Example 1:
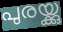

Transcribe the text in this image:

പുരയ്ക്കു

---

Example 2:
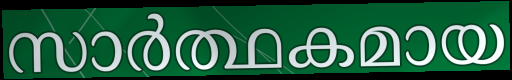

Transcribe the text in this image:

സാർത്ഥകമായ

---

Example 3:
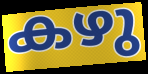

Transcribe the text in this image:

കഴു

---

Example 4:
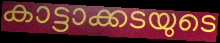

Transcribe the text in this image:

കാട്ടാക്കടയുടെ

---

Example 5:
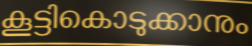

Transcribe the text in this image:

കൂട്ടികൊടുക്കാനും